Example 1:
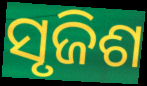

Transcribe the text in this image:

ସୃଜିଶ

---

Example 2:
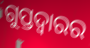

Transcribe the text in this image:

ଗୁପ୍ତଦ୍ୱାରର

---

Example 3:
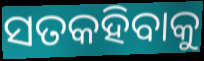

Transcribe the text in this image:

ସତକହିବାକୁ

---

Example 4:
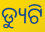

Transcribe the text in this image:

ଡ୍ୟୁଟି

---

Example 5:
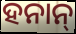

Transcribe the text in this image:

ହନାନ୍